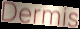
Dermis